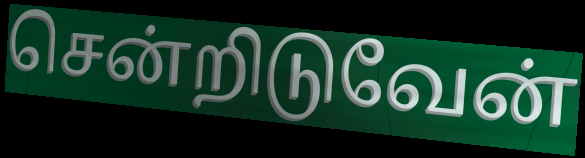
சென்றிடுவேன்